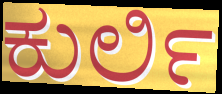
ಕುರ್ಲಿ